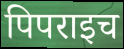
पिपराइच